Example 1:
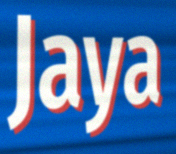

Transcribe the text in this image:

Jaya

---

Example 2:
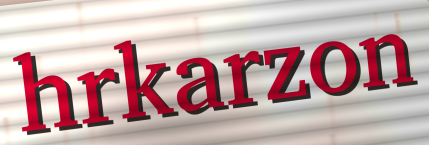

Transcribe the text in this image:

hrkarzon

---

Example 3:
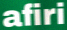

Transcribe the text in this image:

afiri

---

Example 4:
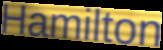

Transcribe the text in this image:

Hamilton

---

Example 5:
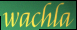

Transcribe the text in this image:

wachla